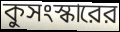
কুসংস্কারের